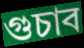
গুচাব